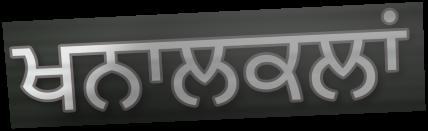
ਖਨਾਲਕਲਾਂ